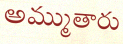
అమ్ముతారు